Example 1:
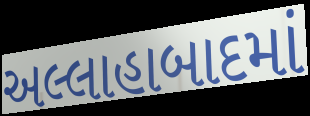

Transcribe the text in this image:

અલ્લાહાબાદમાં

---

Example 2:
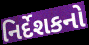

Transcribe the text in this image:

નિર્દેશકનો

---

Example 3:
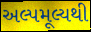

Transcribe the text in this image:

અલ્પમૂલ્યથી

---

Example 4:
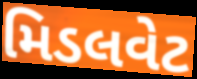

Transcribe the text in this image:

મિડલવેટ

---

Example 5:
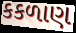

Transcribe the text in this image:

કકળાણ